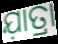
ଯ଼ାତ୍ରା